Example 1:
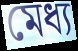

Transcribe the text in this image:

মেধ্য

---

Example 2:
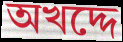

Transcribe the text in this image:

অখদ্দে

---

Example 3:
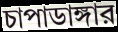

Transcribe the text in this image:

চাপাডাঙ্গার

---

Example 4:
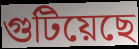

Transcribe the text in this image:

গুটিয়েছে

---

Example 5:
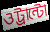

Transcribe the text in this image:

ওট্রান্টো